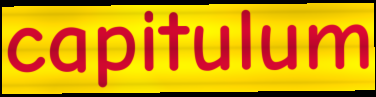
capitulum